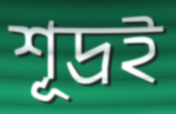
শূদ্ৰই